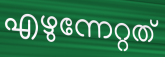
എഴുന്നേറ്റത്